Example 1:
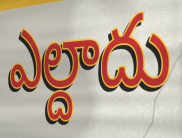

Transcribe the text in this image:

ఎల్దాదు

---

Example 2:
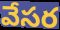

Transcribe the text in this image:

వేసర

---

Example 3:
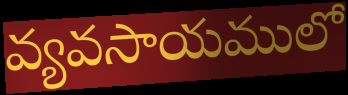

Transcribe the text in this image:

వ్యవసాయములో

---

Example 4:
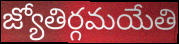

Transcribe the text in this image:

జ్యోతిర్గమయేతి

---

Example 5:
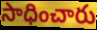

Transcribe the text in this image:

సాధించారు